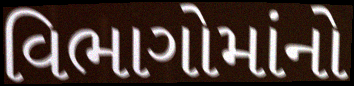
વિભાગોમાંનો